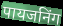
पायजनिंग